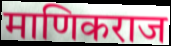
माणिकराज